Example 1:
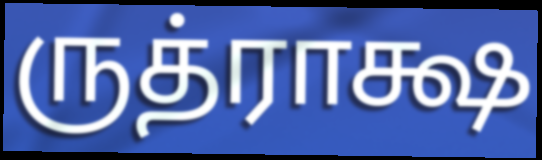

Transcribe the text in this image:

ருத்ராக்ஷ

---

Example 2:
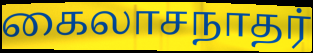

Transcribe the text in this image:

கைலாசநாதர்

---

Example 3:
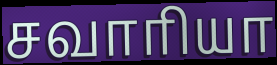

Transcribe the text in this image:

சவாரியா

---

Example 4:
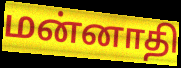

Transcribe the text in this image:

மன்னாதி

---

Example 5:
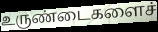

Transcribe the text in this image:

உருண்டைகளைச்